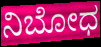
ನಿಬೋಧ